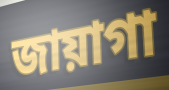
জায়াগা